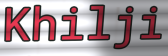
Khilji